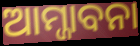
ଆମ୍ଜାବନା